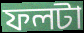
ফলটা